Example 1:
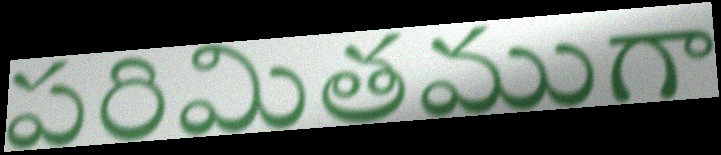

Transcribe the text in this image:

పరిమితముగా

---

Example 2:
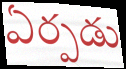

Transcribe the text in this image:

ఏర్పడు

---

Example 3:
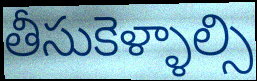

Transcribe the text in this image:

తీసుకెళ్ళాల్సి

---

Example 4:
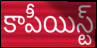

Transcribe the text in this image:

కాపీయిస్ట్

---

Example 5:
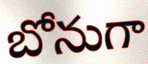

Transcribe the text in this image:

బోనుగా